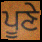
ਪੂਣੇ